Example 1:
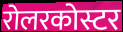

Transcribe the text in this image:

रोलरकोस्टर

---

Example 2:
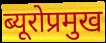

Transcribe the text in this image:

ब्यूरोप्रमुख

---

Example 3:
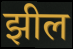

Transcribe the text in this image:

झील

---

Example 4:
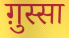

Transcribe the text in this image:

ग़ुस्सा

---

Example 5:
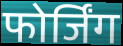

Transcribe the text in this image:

फोर्जिंग